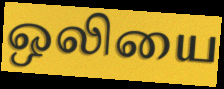
ஒலியை